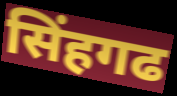
सिंहगढ